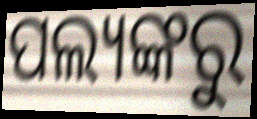
ପଲ୍ୟଙ୍କରୁ